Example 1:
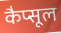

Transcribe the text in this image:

कैप्सूल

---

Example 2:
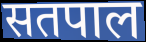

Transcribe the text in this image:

सतपाल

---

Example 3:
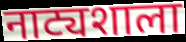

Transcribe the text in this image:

नाट्यशाला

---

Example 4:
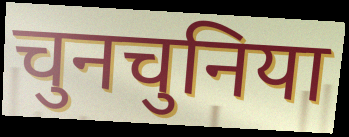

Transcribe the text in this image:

चुनचुनिया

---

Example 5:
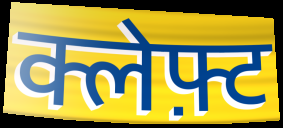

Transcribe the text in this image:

क्लेफ़्ट